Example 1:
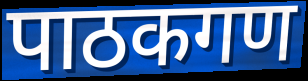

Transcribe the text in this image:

पाठकगण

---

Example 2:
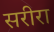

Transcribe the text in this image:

सरीरा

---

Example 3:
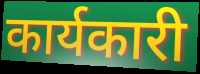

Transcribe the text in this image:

कार्यकारी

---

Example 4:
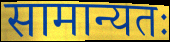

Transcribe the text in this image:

सामान्यतः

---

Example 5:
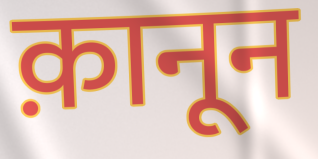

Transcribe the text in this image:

क़ानून